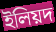
ইলিয়দ